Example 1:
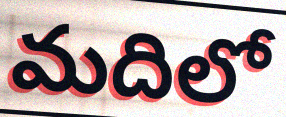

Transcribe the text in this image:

మదిలో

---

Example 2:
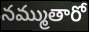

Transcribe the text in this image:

నమ్ముతారో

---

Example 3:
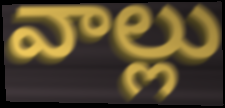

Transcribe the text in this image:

వాల్లు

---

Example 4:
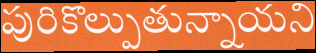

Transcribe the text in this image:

పురికొల్పుతున్నాయని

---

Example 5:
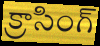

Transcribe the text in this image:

క్రాసింగ్